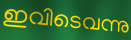
ഇവിടെവന്നു